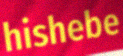
hishebe